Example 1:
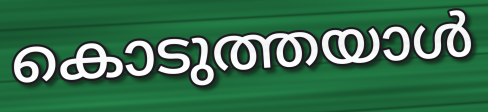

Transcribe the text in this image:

കൊടുത്തയാൾ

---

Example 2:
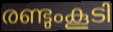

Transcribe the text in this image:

രണ്ടുംകൂടി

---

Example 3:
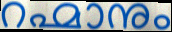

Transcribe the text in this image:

റഹ്മാനും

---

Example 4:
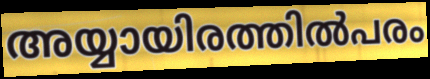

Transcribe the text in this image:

അയ്യായിരത്തിൽപരം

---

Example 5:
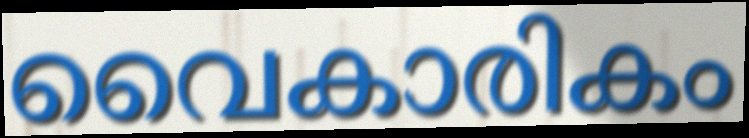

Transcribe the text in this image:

വൈകാരികം